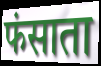
फंसाता